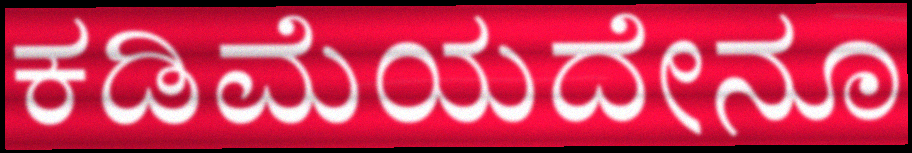
ಕಡಿಮೆಯದೇನೂ